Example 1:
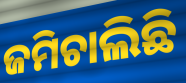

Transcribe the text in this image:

ଜମିଚାଲିଛି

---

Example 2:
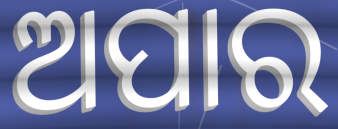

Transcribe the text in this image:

ଅପାର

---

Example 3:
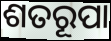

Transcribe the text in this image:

ଶତରୂପା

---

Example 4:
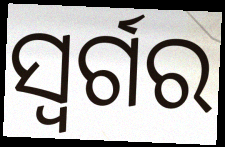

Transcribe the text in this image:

ସ୍ୱର୍ଗର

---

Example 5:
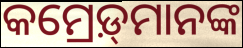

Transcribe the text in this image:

କମ୍ରେଡ଼୍‌ମାନଙ୍କ